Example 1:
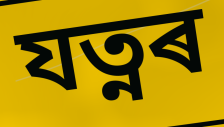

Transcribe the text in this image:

যত্নৰ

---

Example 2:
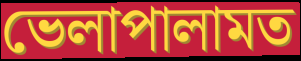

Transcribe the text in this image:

ভেলাপালামত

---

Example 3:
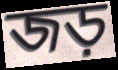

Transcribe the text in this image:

জড়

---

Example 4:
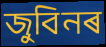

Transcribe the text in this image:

জুবিনৰ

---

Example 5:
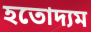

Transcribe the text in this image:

হতোদ্যম